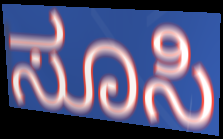
ಸೂಸಿ